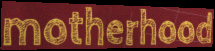
motherhood